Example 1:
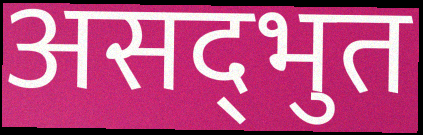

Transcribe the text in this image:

असद्भुत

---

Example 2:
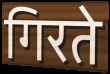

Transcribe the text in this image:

गिरते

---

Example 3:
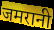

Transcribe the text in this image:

जमरानी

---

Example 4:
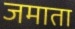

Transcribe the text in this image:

जमाता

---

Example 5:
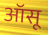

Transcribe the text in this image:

ऑसू